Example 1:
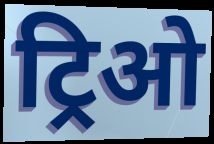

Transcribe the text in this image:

ट्रिओ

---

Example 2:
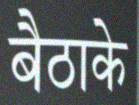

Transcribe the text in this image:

बैठाके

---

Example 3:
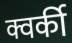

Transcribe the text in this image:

क्वर्की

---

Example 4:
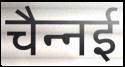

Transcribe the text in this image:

चैन्नई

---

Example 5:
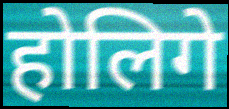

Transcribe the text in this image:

होलिगे